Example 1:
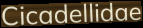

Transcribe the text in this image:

Cicadellidae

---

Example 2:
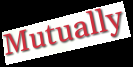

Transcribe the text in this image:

Mutually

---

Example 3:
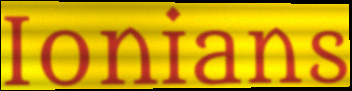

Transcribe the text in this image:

Ionians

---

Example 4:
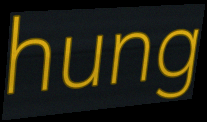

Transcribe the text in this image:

hung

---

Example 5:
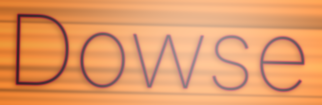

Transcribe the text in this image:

Dowse